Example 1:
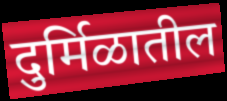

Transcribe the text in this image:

दुर्मिळातील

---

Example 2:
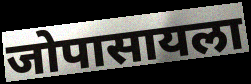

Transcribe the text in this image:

जोपासायला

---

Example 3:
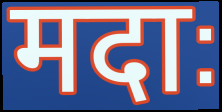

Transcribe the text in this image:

मदाः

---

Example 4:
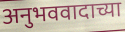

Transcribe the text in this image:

अनुभववादाच्या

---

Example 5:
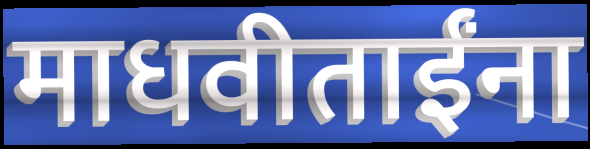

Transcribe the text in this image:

माधवीताईंना